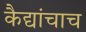
कैद्यांचाच